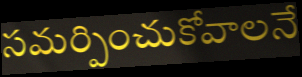
సమర్పించుకోవాలనే